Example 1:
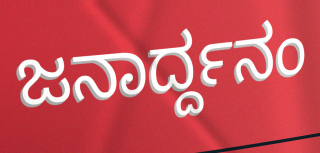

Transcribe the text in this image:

ಜನಾರ್ದ್ದನಂ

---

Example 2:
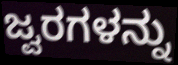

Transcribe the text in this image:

ಜ್ವರಗಳನ್ನು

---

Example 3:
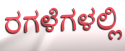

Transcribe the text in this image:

ರಗಳೆಗಳಲ್ಲಿ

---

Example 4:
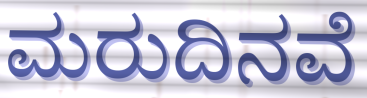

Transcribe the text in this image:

ಮರುದಿನವೆ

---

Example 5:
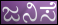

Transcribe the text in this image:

ಜನಿಸೆ